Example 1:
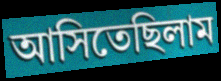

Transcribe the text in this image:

আসিতেছিলাম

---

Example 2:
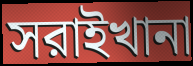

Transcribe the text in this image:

সরাইখানা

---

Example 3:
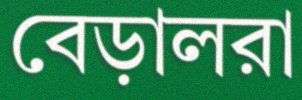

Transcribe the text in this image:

বেড়ালরা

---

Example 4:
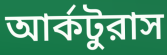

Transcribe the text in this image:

আর্কটুরাস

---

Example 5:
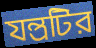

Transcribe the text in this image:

যন্ত্রটির